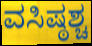
ವಸಿಷ್ಠಶ್ಚ